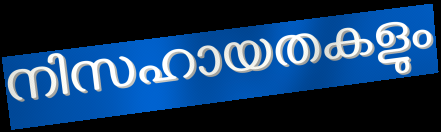
നിസഹായതകളും